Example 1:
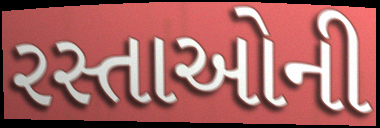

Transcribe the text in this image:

રસ્તાઓની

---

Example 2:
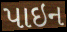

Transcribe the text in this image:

પાઇન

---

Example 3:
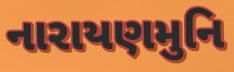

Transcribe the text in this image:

નારાયણમુનિ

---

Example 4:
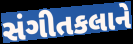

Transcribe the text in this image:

સંગીતકલાને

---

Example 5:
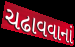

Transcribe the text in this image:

ચઢાવવાનાં